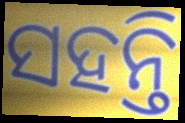
ସହନ୍ତି